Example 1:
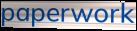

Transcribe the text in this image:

paperwork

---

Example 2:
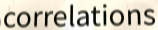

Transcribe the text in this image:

correlations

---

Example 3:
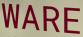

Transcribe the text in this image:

WARE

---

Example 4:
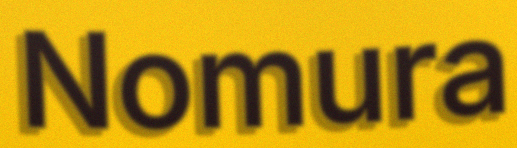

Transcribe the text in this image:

Nomura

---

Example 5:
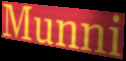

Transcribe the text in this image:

Munni